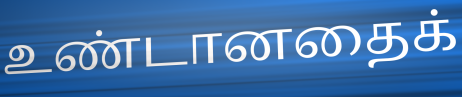
உண்டானதைக்